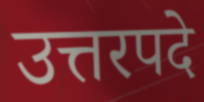
उत्तरपदे